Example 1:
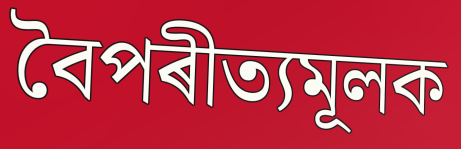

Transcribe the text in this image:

বৈপৰীত্যমূলক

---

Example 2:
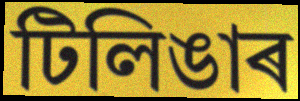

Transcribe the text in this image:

টিলিঙাৰ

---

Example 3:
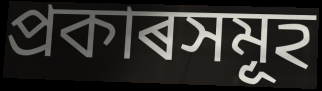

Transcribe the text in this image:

প্ৰকাৰসমূহ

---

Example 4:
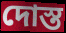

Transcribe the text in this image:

দোস্ত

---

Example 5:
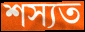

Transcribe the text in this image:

শস্যত